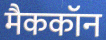
मैककॉन